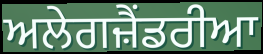
ਅਲੇਗਜ਼ੈਂਡਰੀਆ